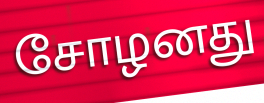
சோழனது